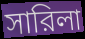
সারিলা